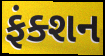
ફંક્શન